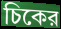
চিকের